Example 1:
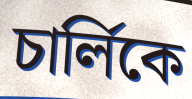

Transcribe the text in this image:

চার্লিকে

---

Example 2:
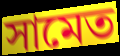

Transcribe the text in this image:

সামেত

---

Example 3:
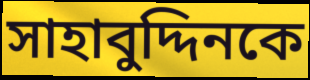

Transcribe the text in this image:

সাহাবুদ্দিনকে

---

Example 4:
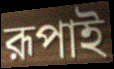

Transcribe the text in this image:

রূপাই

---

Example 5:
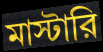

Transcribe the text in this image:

মাস্টারি